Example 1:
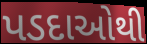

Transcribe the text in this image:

પડદાઓથી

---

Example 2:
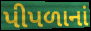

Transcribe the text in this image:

પીપળાનાં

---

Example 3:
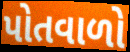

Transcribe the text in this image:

પોતવાળો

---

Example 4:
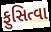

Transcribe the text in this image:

ફુસિત્વા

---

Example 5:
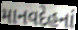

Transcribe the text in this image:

માનવદેહનાં